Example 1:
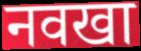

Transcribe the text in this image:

नवखा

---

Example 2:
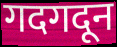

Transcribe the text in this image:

गदगदून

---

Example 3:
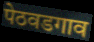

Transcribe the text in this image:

पेठवडगाव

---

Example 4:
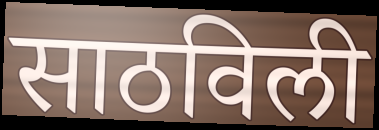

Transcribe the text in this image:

साठविली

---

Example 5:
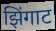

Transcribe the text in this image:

झिंगाट